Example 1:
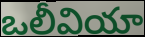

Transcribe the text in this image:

ఒలీవియా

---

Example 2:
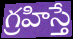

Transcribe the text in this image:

గ్రహిస్తే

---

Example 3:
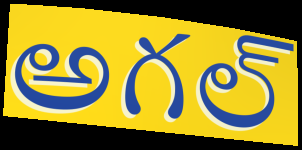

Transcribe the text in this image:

అగల్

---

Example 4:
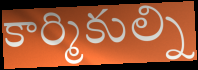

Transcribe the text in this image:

కార్మికుల్ని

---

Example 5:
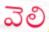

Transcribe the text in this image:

వెలి